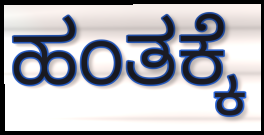
ಹಂತಕ್ಕೆ